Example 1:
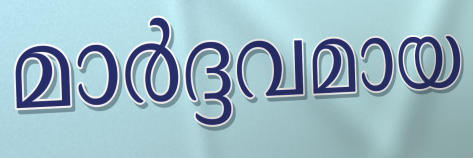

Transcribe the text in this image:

മാർദ്ദവമായ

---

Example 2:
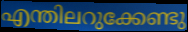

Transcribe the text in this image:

എന്തിലറുക്കേണ്ടു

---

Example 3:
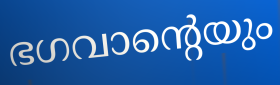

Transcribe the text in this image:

ഭഗവാന്റെയും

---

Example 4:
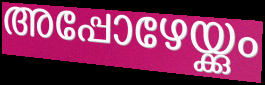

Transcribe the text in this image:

അപ്പോഴേയ്ക്കും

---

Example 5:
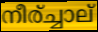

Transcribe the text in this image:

നീര്ച്ചാല്